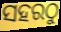
ସହରଠୁ